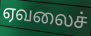
ஏவலைச்